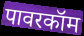
पावरकॉम